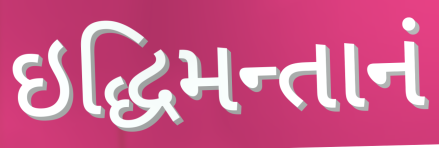
ઇદ્ધિમન્તાનં